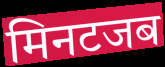
मिनटजब